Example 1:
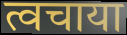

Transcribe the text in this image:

त्वचाया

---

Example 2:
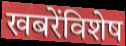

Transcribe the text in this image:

खबरेंविशेष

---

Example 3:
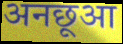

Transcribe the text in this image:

अनछूआ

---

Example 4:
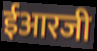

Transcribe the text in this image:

ईआरजी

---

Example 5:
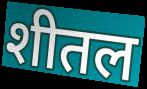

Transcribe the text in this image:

शीतल